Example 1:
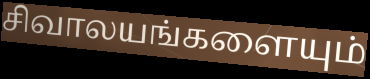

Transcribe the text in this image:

சிவாலயங்களையும்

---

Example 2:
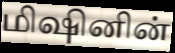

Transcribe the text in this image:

மிஷினின்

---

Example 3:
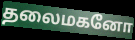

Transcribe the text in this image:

தலைமகனோ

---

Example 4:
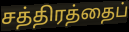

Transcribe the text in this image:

சத்திரத்தைப்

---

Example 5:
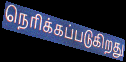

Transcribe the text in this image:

நெரிக்கப்படுகிறது